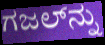
ಗಜಲ್‍ನ್ನು